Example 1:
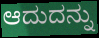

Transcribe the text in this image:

ಆದುದನ್ನು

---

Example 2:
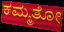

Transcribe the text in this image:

ಕಮ್ಮತೋ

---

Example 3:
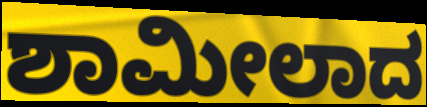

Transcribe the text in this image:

ಶಾಮೀಲಾದ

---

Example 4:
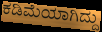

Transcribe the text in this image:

ಕಡಿಮೆಯಾಗಿದ್ದು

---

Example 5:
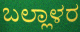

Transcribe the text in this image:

ಬಲ್ಲಾಳರ